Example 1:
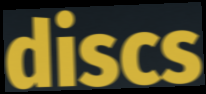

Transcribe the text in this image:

discs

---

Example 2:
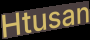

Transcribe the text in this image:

Htusan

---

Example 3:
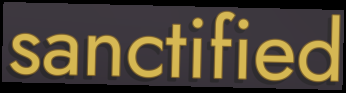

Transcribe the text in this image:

sanctified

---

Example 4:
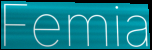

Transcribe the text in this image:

Femia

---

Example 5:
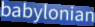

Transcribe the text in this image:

babylonian